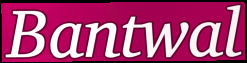
Bantwal